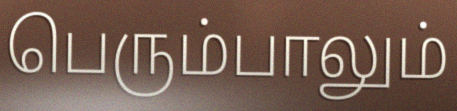
பெரும்பாலும்